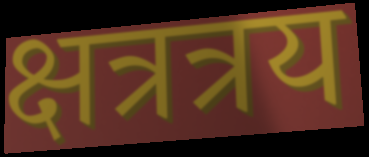
क्षत्रत्रय